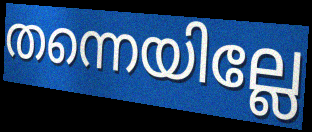
തന്നെയില്ലേ